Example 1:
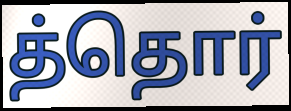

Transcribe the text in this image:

த்தொர்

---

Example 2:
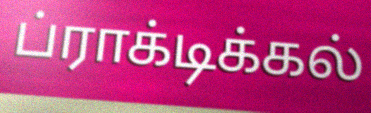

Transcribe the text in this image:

ப்ராக்டிக்கல்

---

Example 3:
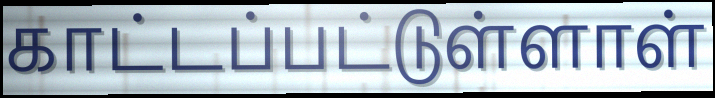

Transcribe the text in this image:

காட்டப்பட்டுள்ளாள்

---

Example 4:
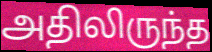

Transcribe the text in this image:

அதிலிருந்த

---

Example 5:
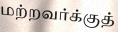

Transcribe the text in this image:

மற்றவர்க்குத்